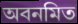
অবনমিত